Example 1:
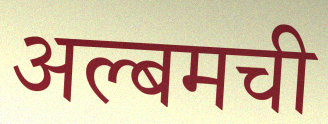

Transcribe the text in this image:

अल्बमची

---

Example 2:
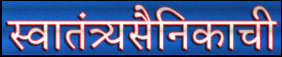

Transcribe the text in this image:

स्वातंत्र्यसैनिकाची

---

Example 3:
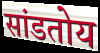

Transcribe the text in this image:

सांडतोय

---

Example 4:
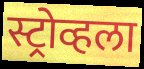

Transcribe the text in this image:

स्ट्रोव्हला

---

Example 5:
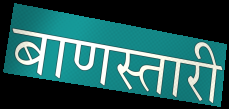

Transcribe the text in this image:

बाणस्तारी